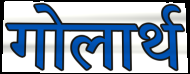
गोलार्थ